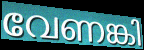
വേണങ്കി